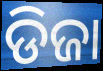
ଡିଜା